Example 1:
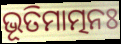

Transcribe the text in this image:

ଭୂତିମାତ୍ମନଃ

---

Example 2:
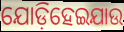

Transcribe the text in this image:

ଯୋଡ଼ିହେଇଯାଉ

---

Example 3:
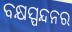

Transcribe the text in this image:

ବକ୍ଷସ୍ପନ୍ଦନର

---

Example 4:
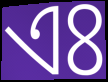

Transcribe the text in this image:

ଏଃ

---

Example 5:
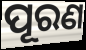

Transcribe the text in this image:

ପୂରଣ